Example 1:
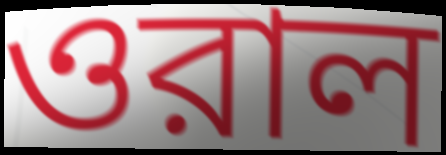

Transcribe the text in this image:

ওরাল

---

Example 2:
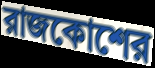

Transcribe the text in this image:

রাজকোশের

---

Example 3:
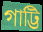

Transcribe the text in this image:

গাট্টি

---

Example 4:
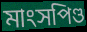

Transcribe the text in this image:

মাংসপিণ্ড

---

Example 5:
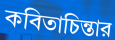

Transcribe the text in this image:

কবিতাচিন্তার